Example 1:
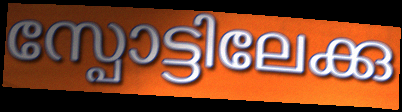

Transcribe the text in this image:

സ്പോട്ടിലേക്കു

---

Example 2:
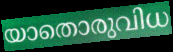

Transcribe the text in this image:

യാതൊരുവിധ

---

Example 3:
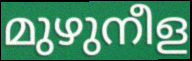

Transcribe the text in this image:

മുഴുനീള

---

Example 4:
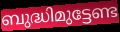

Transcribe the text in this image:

ബുദ്ധിമുട്ടേണ്ട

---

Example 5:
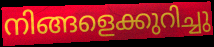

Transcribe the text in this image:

നിങ്ങളെക്കുറിച്ചു